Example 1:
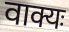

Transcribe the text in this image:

वाक्यः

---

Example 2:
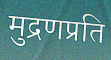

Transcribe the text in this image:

मुद्रणप्रति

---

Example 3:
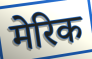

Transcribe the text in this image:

मेरिक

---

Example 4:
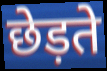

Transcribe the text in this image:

छेड़ते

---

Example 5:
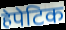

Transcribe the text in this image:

हेपेटिक